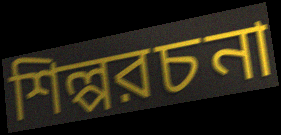
শিল্পরচনা